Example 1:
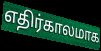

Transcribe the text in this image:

எதிர்காலமாக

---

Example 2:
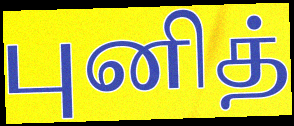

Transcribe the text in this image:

புனித்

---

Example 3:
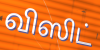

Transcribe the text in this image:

விஸிட்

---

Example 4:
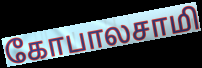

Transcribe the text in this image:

கோபாலசாமி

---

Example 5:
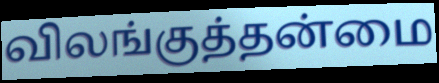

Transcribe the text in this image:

விலங்குத்தன்மை